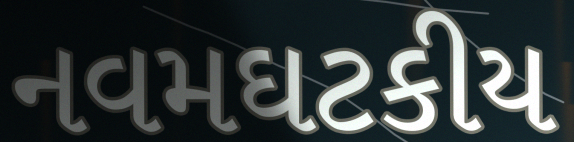
નવમઘટકીય